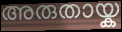
അരുതായ്ക